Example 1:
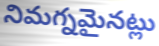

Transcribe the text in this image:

నిమగ్నమైనట్లు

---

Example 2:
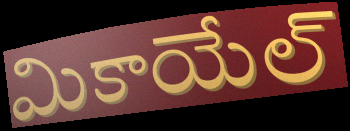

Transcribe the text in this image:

మికాయేల్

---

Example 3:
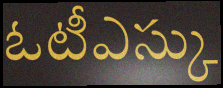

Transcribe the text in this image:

ఓటీఎస్కు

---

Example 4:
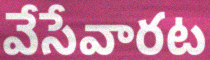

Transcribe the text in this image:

వేసేవారట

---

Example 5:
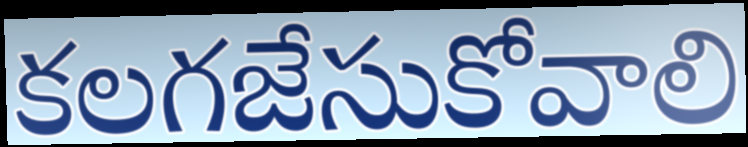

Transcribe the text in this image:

కలగజేసుకోవాలి